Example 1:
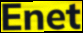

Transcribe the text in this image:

Enet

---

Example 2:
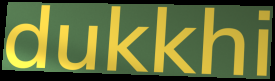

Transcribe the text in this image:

dukkhi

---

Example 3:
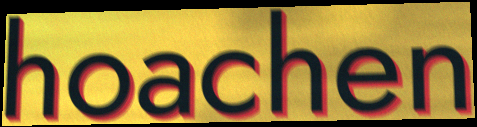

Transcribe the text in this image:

hoachen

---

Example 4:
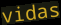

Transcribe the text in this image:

vidas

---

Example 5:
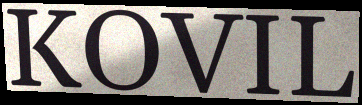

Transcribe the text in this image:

KOVIL